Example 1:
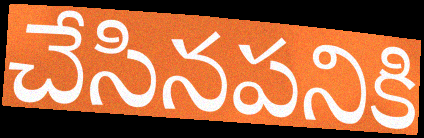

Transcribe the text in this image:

చేసినపనికి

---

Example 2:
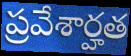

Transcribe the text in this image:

ప్రవేశార్హత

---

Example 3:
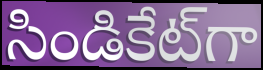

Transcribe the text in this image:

సిండికేట్‌గా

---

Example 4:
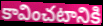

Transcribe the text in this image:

కావించటానికి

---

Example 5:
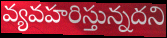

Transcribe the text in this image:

వ్యవహరిస్తున్నదని